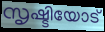
സൃഷ്ടിയോട്